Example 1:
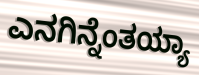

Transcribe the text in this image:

ಎನಗಿನ್ನೆಂತಯ್ಯಾ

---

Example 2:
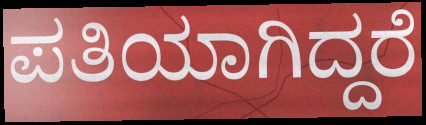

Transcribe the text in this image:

ಪತಿಯಾಗಿದ್ದರೆ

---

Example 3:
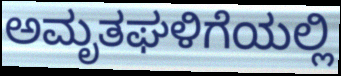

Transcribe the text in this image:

ಅಮೃತಘಳಿಗೆಯಲ್ಲಿ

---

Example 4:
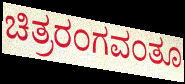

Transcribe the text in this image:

ಚಿತ್ರರಂಗವಂತೂ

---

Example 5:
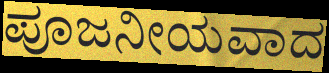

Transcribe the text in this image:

ಪೂಜನೀಯವಾದ